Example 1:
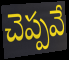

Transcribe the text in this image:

చెప్పవే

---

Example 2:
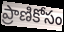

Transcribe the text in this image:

ప్రాణికోసం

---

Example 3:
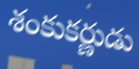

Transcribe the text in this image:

శంకుకర్ణుడు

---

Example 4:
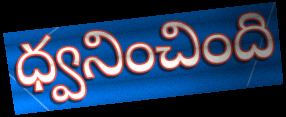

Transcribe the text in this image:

ధ్వనించింది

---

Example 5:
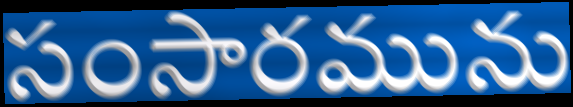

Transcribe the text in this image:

సంసారమును